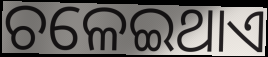
ଚଳେଇଥାଏ